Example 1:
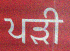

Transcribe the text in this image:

ਪਡ਼ੀ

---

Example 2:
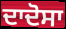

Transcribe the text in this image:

ਦਾਦੋਸਾ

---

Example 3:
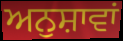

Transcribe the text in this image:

ਅਨੁਸ਼ਾਵਾਂ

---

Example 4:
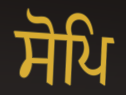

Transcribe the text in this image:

ਸੋਪਿ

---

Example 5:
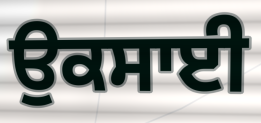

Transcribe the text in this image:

ਉਕਸਾਈ